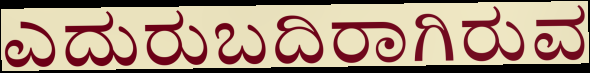
ಎದುರುಬದಿರಾಗಿರುವ